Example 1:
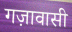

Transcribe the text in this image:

गज़ावासी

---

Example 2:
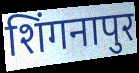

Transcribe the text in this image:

शिंगनापुर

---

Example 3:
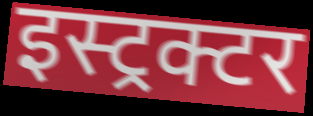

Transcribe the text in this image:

इस्ट्रक्टर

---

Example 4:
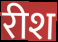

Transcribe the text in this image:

रीश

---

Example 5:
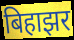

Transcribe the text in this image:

बिहाझर